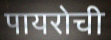
पायरोची